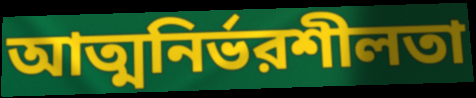
আত্মনির্ভরশীলতা